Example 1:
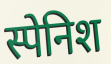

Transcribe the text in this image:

स्पेनिश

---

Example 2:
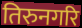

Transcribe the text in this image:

तिरुनगरि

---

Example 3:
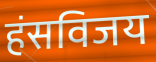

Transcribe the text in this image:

हंसविजय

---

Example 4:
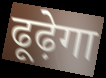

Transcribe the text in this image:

ढूढ़ेगा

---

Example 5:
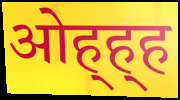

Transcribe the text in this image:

ओह्ह्ह